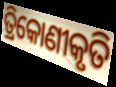
ତ୍ରିକୋଣୀକୃତି